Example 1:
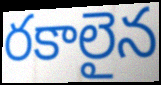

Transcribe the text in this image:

రకాలైన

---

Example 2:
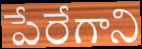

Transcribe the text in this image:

పేరేగాని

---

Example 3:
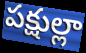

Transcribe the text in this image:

పక్షుల్లా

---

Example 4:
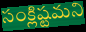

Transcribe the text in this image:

సంక్లిష్టమని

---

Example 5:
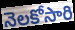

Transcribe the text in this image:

నెలకోసారి